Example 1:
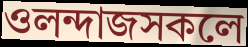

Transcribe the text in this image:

ওলন্দাজসকলে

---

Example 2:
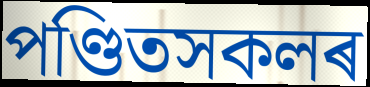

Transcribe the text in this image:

পণ্ডিতসকলৰ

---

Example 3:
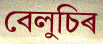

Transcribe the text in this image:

বেলুচিৰ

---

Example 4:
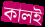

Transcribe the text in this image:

কালই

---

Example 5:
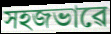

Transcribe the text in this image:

সহজভাৱে